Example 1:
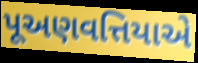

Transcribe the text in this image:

પૂઅણવત્તિયાએ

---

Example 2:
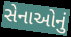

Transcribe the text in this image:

સેનાઓનું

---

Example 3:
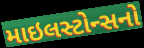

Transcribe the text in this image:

માઇલસ્ટોન્સનો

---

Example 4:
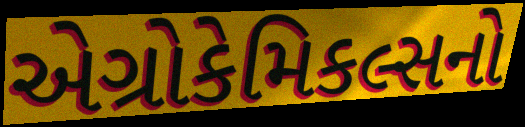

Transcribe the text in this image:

એગ્રોકેમિકલ્સનો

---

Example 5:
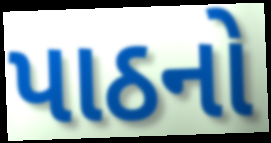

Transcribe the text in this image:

પાઠનો